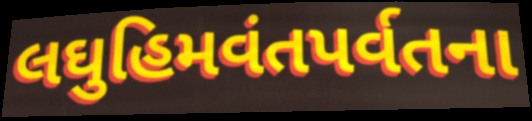
લઘુહિમવંતપર્વતના